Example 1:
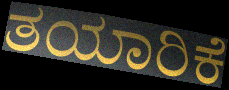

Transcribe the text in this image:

ತಯಾರಿಕೆ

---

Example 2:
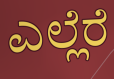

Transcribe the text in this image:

ಎಲ್ಲೆರೆ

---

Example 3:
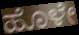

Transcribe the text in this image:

ಹೊಳೇ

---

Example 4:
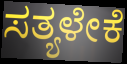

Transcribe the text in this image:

ಸತ್ಯಳೇಕೆ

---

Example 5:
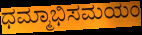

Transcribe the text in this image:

ಧಮ್ಮಾಭಿಸಮಯಂ